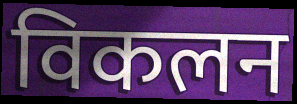
विकलन